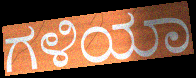
ಗಳಿಯಾ